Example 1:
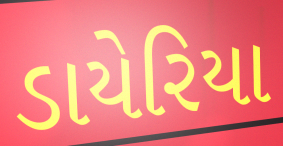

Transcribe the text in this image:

ડાયેરિયા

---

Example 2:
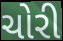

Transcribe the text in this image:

ચોરી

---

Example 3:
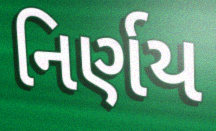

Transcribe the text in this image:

નિર્ણય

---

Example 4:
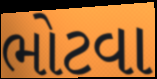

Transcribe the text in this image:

ભોટવા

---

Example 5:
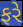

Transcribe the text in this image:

ફરે